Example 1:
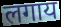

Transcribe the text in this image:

लगाय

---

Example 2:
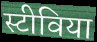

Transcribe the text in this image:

स्टीविया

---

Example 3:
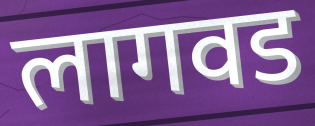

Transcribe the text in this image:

लागवड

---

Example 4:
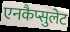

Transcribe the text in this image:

एनकैप्सुलेट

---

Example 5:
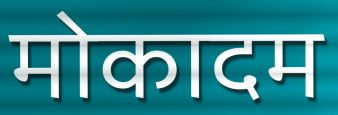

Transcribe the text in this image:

मोकादम